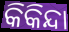
କିକିନ୍ଦା